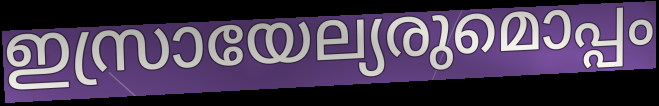
ഇസ്രായേല്യരുമൊപ്പം